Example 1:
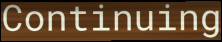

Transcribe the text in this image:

Continuing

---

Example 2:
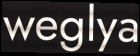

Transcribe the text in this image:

weglya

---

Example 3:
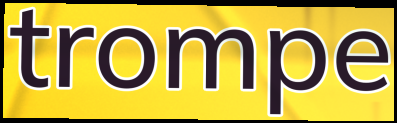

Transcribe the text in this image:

trompe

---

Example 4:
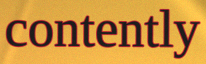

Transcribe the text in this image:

contently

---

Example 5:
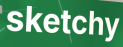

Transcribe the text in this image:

sketchy